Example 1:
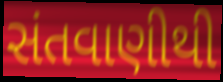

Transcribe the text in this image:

સંતવાણીથી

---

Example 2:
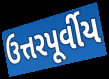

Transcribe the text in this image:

ઉત્તરપૂર્વીય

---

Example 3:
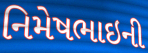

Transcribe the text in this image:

નિમેષભાઇની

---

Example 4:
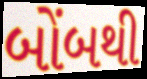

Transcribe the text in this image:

બોંબથી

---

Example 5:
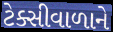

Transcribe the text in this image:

ટેક્સીવાળાને